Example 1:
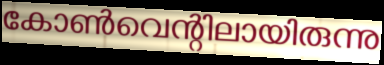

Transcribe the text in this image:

കോൺവെന്റിലായിരുന്നു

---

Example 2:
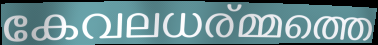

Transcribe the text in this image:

കേവലധര്മ്മത്തെ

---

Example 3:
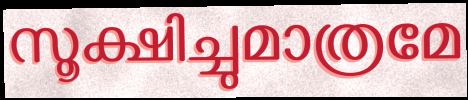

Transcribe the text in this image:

സൂക്ഷിച്ചുമാത്രമേ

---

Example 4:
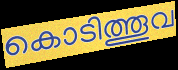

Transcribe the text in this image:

കൊടിത്തൂവ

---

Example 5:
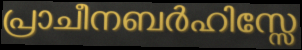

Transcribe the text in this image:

പ്രാചീനബർഹിസ്സേ